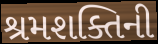
શ્રમશક્તિની